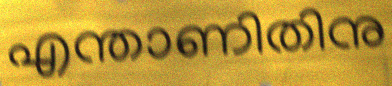
എന്താണിതിനു